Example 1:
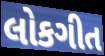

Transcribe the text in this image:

લોકગીત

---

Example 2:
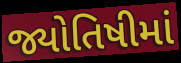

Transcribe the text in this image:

જ્યોતિષીમાં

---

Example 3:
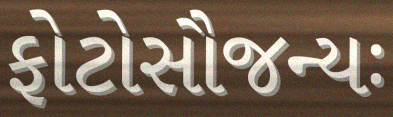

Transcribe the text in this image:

ફોટોસૌજન્યઃ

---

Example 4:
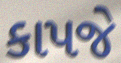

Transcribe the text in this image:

કાપજે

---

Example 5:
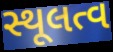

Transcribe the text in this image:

સ્થૂલત્વ